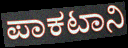
ಪಾಕಟಾನಿ